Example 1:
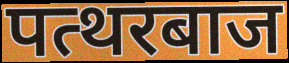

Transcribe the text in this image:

पत्थरबाज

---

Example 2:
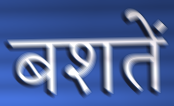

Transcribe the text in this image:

बशतें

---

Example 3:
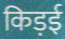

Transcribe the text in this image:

किड़ई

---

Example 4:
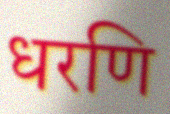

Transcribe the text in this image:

धरणि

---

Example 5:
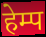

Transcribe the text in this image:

हेम्प